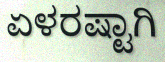
ಏಳರಷ್ಟಾಗಿ